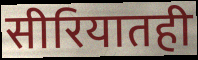
सीरियातही